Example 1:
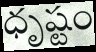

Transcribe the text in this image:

ధృష్టం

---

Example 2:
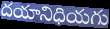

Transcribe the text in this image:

దయానిధియగు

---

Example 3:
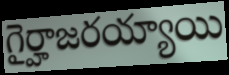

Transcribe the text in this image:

గైర్హాజరయ్యాయి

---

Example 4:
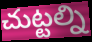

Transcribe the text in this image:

చుట్టల్ని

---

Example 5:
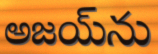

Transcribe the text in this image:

అజయ్‌ను